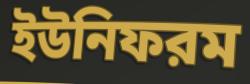
ইউনিফরম